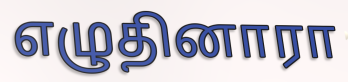
எழுதினாரா